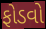
ફોડવો